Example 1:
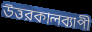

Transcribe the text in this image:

উত্তরকালব্যাপী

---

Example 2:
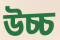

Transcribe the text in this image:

উচ্চ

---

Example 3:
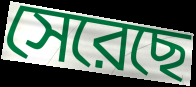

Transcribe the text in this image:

সেরেছে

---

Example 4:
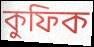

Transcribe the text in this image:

কুফিক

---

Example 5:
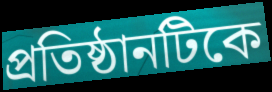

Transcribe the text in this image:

প্রতিষ্ঠানটিকে